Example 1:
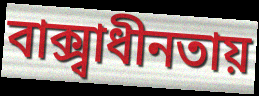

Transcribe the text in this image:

বাক্স্বাধীনতায়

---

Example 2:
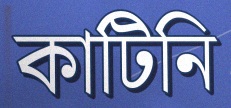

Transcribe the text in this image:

কাটিনি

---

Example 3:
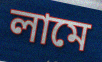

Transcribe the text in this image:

লামে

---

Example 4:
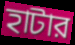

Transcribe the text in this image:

হাটার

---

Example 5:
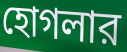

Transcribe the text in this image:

হোগলার